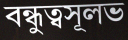
বন্ধুত্বসূলভ